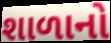
શાળાનો